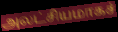
அலட்சியமாகச்